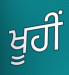
ਖੂਹੀਂ